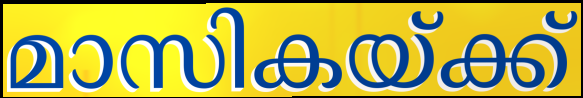
മാസികയ്ക്ക്